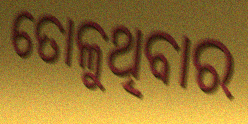
ତୋଳୁଥିବାର